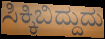
ಸಿಕ್ಕಿಬಿದ್ದುದು